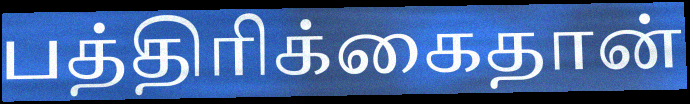
பத்திரிக்கைதான்